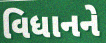
વિધાનને